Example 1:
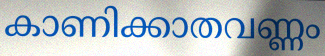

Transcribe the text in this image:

കാണിക്കാതവണ്ണം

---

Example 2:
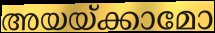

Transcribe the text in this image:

അയയ്ക്കാമോ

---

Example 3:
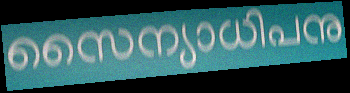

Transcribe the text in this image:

സൈന്യാധിപനു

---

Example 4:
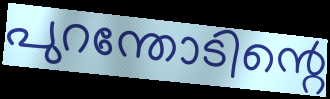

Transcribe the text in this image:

പുറന്തോടിന്റെ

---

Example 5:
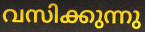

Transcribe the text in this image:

വസിക്കുന്നു